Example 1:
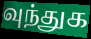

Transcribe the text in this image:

வுந்துக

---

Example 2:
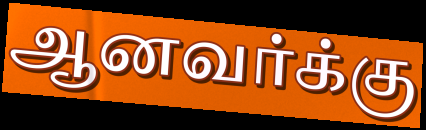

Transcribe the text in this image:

ஆனவர்க்கு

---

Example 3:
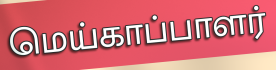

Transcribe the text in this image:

மெய்காப்பாளர்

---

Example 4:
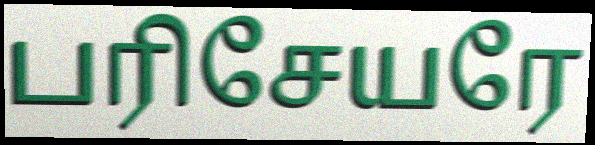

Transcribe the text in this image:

பரிசேயரே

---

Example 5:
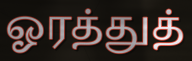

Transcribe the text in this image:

ஓரத்துத்